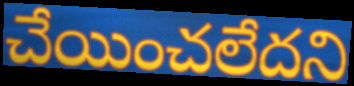
చేయించలేదని